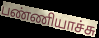
பண்ணியாச்சு